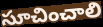
సూచించాలి